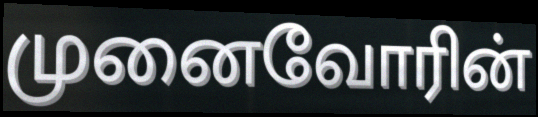
முனைவோரின்